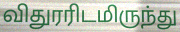
விதுரரிடமிருந்து